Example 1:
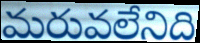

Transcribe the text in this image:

మరువలేనిది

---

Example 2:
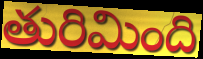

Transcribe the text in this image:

తురిమింది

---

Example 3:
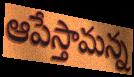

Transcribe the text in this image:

ఆపేస్తామన్న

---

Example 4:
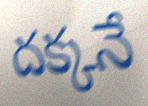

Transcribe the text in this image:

దక్కనే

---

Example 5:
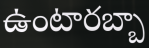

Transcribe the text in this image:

ఉంటారబ్బా